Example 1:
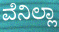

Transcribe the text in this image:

ವೆನಿಲ್ಲಾ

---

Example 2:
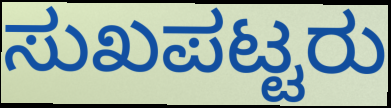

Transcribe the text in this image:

ಸುಖಪಟ್ಟರು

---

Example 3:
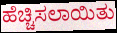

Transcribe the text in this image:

ಹೆಚ್ಚಿಸಲಾಯಿತು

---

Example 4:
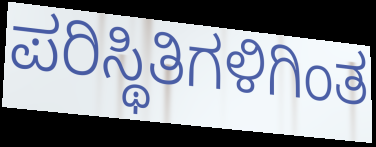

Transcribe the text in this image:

ಪರಿಸ್ಥಿತಿಗಳಿಗಿಂತ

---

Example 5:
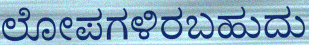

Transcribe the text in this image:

ಲೋಪಗಳಿರಬಹುದು